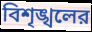
বিশৃঙ্খলের